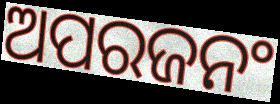
ଅପରଜନଂ